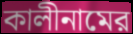
কালীনামের